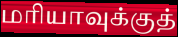
மரியாவுக்குத்